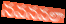
నవనవలా